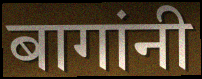
बागांनी